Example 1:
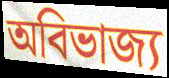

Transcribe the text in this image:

অবিভাজ্য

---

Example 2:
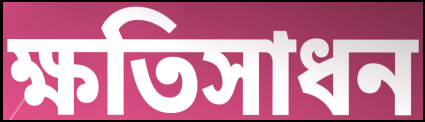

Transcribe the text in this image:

ক্ষতিসাধন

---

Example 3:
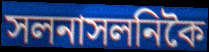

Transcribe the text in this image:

সলনাসলনিকৈ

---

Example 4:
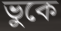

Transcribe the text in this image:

ভুকে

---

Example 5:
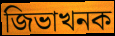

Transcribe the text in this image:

জিভাখনক